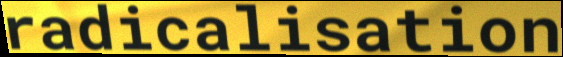
radicalisation